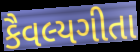
કૈવલ્યગીતા